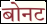
बोनट